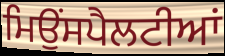
ਮਿਉਂਸਪੈਲਟੀਆਂ